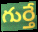
గుర్తే